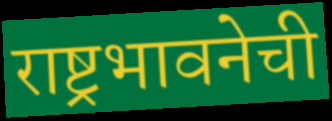
राष्ट्रभावनेची